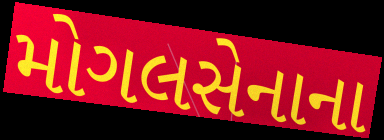
મોગલસેનાના